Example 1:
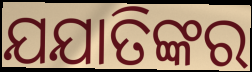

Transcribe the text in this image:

ଯଯାତିଙ୍କର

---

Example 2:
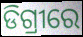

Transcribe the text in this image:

ଡିଗ୍ରୀରେ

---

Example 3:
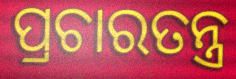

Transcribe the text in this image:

ପ୍ରଚାରତନ୍ତ୍ର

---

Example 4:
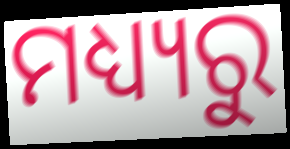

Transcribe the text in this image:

ମଧ୍ୟ୍ୟରୁ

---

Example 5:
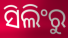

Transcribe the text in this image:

ସିଲିଂରୁ